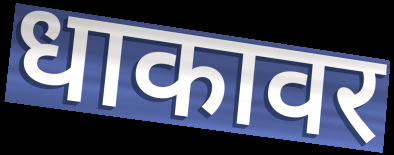
धाकावर